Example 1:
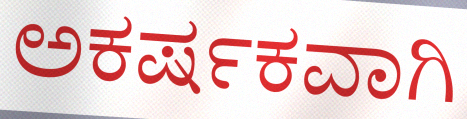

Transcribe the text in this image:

ಅಕರ್ಷಕವಾಗಿ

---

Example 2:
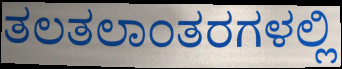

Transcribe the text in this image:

ತಲತಲಾಂತರಗಳಲ್ಲಿ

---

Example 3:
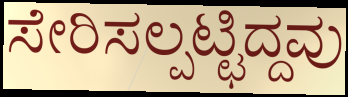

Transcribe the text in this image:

ಸೇರಿಸಲ್ಪಟ್ಟಿದ್ದವು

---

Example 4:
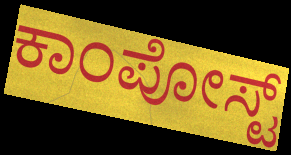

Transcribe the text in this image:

ಕಾಂಪೋಸ್ಟ್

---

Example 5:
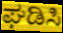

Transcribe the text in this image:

ಘಡಿಸಿ